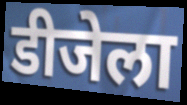
डीजेला